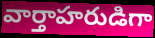
వార్తాహరుడిగా